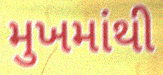
મુખમાંથી